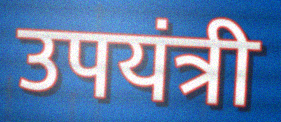
उपयंत्री